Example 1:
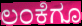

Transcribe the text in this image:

ಲಂಕೆಗೂ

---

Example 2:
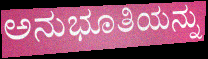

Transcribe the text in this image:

ಅನುಭೂತಿಯನ್ನು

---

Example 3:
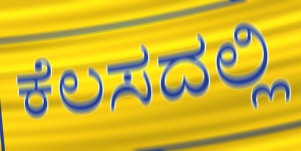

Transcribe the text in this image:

ಕೆಲಸದಲ್ಲಿ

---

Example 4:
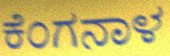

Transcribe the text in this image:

ಕೆಂಗನಾಳ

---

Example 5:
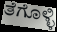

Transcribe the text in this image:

ತೆಗೊಳ್ಳಿ